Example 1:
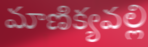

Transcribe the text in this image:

మాణిక్యవల్లి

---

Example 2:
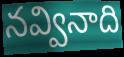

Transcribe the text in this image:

నవ్వినాది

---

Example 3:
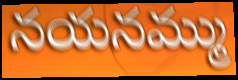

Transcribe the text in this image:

నయనమ్ము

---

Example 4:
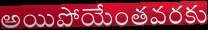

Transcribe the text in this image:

అయిపోయేంతవరకు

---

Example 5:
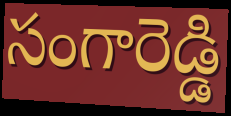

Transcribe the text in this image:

సంగారెడ్డి